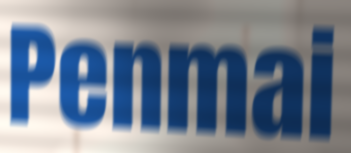
Penmai